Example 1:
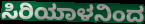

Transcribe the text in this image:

ಸಿರಿಯಾಳನಿಂದ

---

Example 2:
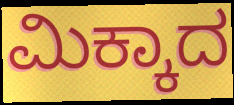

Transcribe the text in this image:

ಮಿಕ್ಕಾದ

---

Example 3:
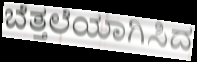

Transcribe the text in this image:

ಬೆತ್ತಲೆಯಾಗಿಸಿದ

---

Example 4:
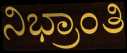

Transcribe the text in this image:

ನಿಭ್ರಾಂತಿ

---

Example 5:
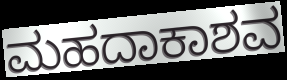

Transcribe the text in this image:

ಮಹದಾಕಾಶವ